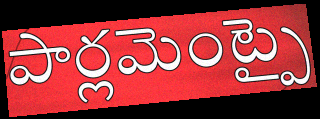
పార్లమెంట్పై